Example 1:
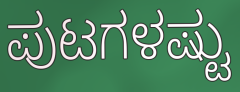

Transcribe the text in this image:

ಪುಟಗಳಷ್ಟು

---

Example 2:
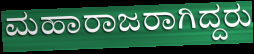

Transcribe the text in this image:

ಮಹಾರಾಜರಾಗಿದ್ದರು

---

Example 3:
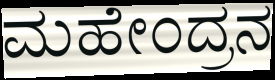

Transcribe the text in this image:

ಮಹೇಂದ್ರನ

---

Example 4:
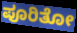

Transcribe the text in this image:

ಪೂರಿತೋ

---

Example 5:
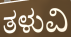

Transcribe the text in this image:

ತಳುವಿ